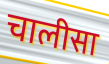
चालीसा